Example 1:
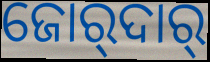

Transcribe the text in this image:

ଜୋର୍‍ଦାର୍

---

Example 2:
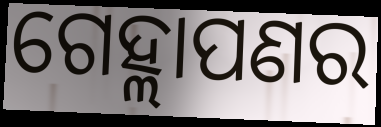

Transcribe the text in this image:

ଗେହ୍ଲାପଣର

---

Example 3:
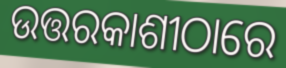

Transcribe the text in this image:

ଉତ୍ତରକାଶୀଠାରେ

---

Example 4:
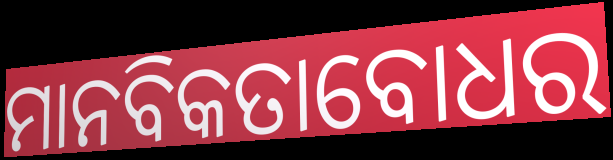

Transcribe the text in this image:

ମାନବିକତାବୋଧର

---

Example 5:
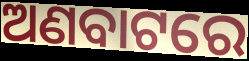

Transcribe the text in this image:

ଅଣବାଟରେ